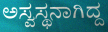
ಅಸ್ವಸ್ಥನಾಗಿದ್ದ